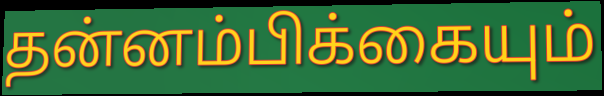
தன்னம்பிக்கையும்